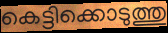
കെട്ടിക്കൊടുത്തു